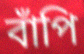
বাঁপি